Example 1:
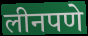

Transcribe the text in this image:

लीनपणे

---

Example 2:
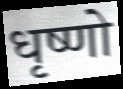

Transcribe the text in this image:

धृष्णो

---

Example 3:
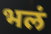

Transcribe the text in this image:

भलं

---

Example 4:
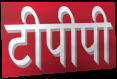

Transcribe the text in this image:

टीपीपी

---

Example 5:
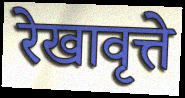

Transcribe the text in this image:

रेखावृत्ते